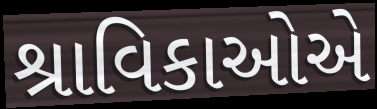
શ્રાવિકાઓએ